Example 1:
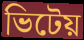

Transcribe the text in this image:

ভিটেয়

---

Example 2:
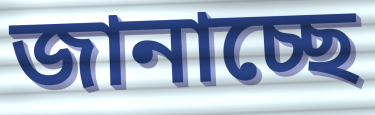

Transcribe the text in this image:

জানাচ্ছে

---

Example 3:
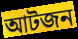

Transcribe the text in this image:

আটজন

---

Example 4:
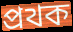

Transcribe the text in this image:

প্রথক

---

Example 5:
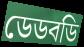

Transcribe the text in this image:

ডেডবডি